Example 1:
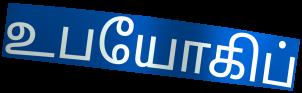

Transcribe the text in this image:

உபயோகிப்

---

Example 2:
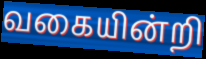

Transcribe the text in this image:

வகையின்றி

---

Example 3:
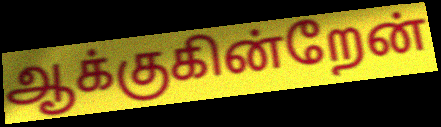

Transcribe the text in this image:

ஆக்குகின்றேன்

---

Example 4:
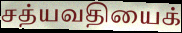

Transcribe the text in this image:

சத்யவதியைக்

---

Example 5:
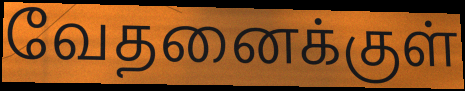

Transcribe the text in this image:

வேதனைக்குள்